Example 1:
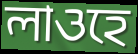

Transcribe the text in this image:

লাওহে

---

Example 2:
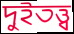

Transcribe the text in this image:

দুইতত্ত্ব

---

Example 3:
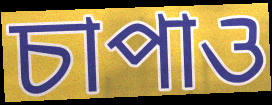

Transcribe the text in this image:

চাপাও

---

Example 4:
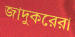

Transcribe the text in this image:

জাদুকরেরা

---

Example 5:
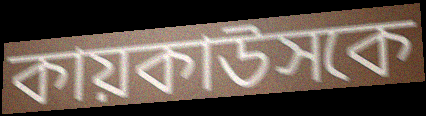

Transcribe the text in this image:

কায়কাউসকে